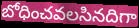
బోధించవలసినదిగా